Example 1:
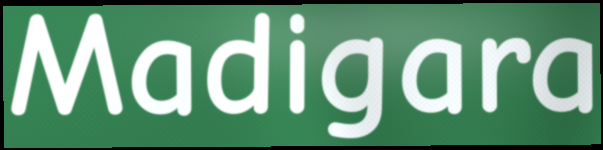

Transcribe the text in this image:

Madigara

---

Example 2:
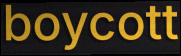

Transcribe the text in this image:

boycott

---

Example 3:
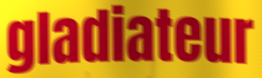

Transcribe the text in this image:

gladiateur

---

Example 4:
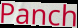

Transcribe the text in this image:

Panch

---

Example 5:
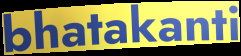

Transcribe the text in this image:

bhatakanti